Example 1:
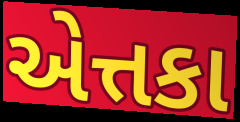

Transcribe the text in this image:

એત્તકા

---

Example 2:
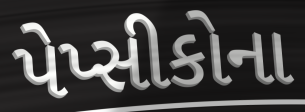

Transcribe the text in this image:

પેપ્સીકોના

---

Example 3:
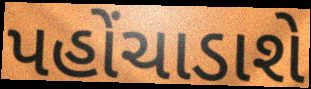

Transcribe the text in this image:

પહોંચાડાશે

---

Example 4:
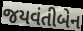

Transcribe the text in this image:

જયવંતીબેન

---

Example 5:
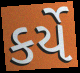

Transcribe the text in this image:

કર્યે